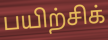
பயிற்சிக்